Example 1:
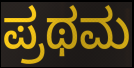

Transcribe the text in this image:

ಪ್ರಥಮ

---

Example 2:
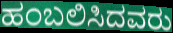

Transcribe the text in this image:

ಹಂಬಲಿಸಿದವರು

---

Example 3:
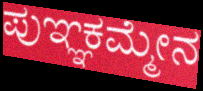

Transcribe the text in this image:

ಪುಞ್ಞಕಮ್ಮೇನ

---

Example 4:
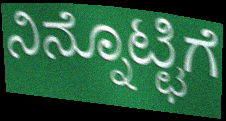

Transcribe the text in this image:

ನಿನ್ನೊಟ್ಟಿಗೆ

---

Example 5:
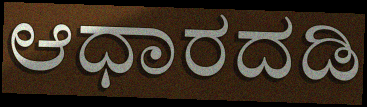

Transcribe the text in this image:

ಆಧಾರದಡಿ